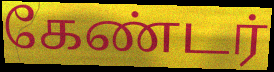
கேண்டர்